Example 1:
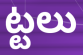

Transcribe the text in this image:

ట్టలు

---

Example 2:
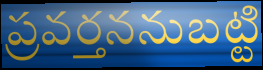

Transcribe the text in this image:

ప్రవర్తననుబట్టి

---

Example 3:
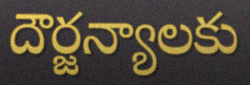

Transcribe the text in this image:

దౌర్జన్యాలకు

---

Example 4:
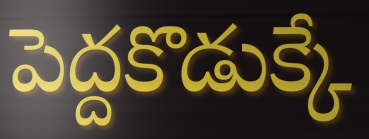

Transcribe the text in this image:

పెద్దకొడుక్కే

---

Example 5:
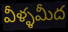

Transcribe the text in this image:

వీళ్ళమీద